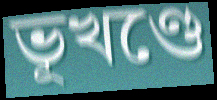
ভূখণ্ডে